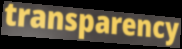
transparency